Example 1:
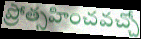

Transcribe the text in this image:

ప్రోత్సహించవచ్చో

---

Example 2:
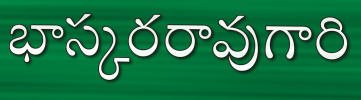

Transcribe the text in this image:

భాస్కరరావుగారి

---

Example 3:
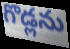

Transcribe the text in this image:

గొడ్లను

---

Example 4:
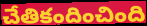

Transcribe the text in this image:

చేతికందించింది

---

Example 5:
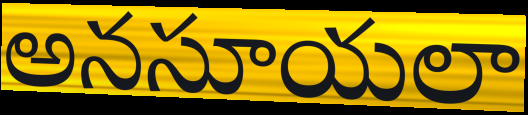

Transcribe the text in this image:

అనసూయలా